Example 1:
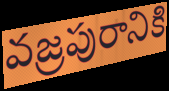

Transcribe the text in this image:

వజ్రపురానికి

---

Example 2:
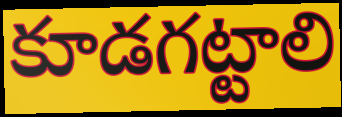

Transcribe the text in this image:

కూడగట్టాలి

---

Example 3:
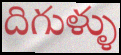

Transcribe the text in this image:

దిగుళ్ళు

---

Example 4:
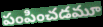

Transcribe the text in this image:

పంపించడమూ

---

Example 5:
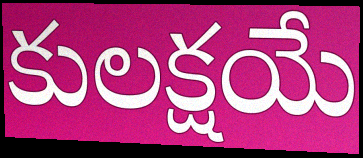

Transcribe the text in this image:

కులక్షయే